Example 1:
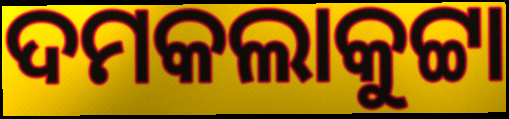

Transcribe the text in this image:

ଦମକଲାକୁଟ୍ଟା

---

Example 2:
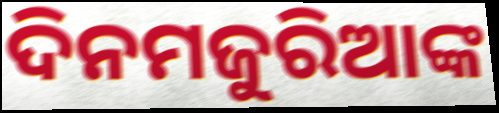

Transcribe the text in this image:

ଦିନମଜୁରିଆଙ୍କ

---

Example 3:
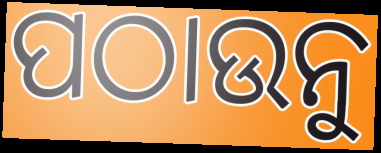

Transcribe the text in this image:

ପଠାଉନୁ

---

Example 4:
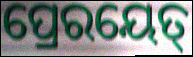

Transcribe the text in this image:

ପ୍ରେରୟେତ୍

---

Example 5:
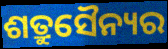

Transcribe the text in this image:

ଶତ୍ରୁସୈନ୍ୟର